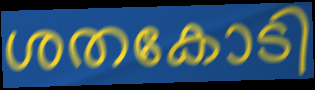
ശതകോടി